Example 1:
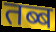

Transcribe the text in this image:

तब्ब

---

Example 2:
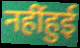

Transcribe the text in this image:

नहींहुई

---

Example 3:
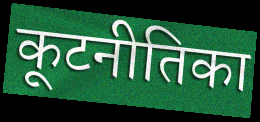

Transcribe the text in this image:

कूटनीतिका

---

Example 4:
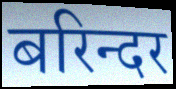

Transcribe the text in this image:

बरिन्दर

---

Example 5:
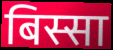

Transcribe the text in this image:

बिस्सा